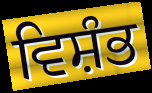
ਵਿਸ਼ੰਭ